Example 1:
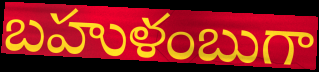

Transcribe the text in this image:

బహుళంబుగా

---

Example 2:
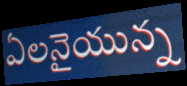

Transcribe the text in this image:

ఏలనైయున్న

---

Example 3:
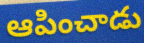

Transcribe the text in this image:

ఆపించాడు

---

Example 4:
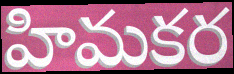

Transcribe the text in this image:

హిమకర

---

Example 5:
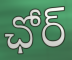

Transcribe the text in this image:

ఛోర్